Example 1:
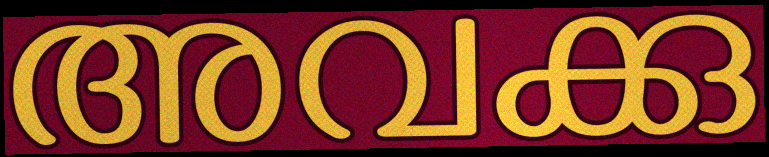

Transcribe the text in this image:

അവക്കു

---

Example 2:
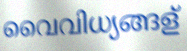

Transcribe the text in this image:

വൈവിധ്യങ്ങള്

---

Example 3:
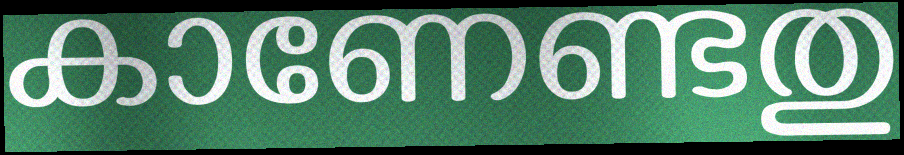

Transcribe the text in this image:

കാണേണ്ടതു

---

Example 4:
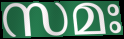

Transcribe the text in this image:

സമഃ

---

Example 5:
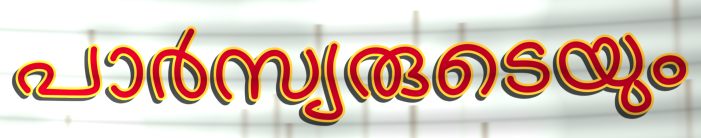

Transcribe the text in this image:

പാർസ്യരുടെയും